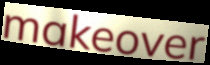
makeover